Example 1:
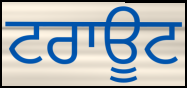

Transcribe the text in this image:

ਟਰਾਊਟ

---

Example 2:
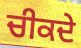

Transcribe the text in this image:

ਚੀਕਦੇ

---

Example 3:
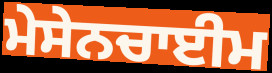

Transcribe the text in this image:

ਮੇਸੇਨਚਾਈਮ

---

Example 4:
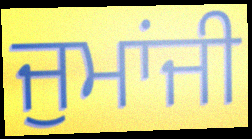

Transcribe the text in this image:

ਜੁਮਾਂਜੀ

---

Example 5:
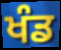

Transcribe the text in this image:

ਖੰਡ